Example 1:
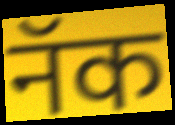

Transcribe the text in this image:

नॅक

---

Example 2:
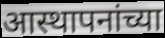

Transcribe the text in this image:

आस्थापनांच्या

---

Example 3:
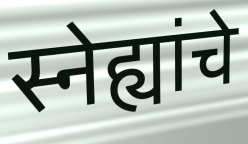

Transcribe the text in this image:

स्नेह्यांचे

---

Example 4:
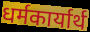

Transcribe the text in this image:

धर्मकार्यार्थ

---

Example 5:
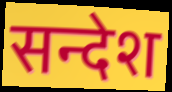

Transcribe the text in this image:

सन्देश